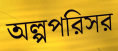
অল্পপরিসর